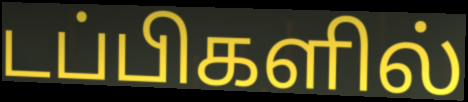
டப்பிகளில்